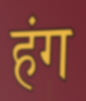
हंग